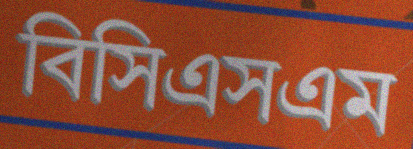
বিসিএসএম